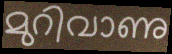
മുറിവാണു